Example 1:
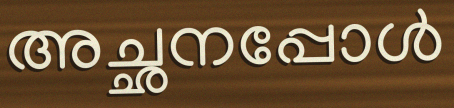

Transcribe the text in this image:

അച്ഛനപ്പോൾ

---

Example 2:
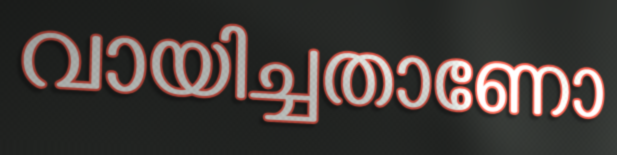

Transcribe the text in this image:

വായിച്ചതാണോ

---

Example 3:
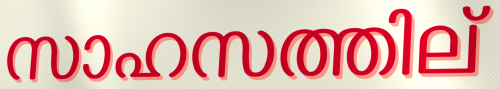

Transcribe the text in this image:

സാഹസത്തില്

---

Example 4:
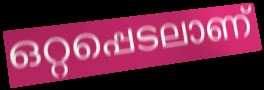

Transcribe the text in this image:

ഒറ്റപ്പെടലാണ്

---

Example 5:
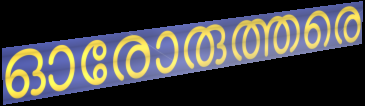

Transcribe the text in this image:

ഓരോരുത്തരെ